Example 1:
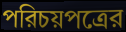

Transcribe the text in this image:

পরিচয়পত্রের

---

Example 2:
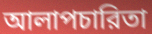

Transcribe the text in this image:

আলাপচারিতা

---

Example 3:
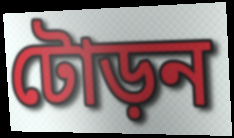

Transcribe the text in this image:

টোড়ন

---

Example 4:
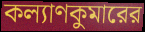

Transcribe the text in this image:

কল্যাণকুমারের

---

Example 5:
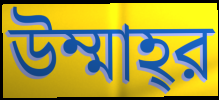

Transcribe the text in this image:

উম্মাহ্‌র